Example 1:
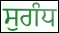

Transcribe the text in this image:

ਸੁਗੰਧ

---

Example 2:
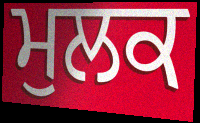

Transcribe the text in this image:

ਮੁਲਕ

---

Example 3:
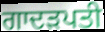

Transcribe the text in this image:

ਗਾਦੜਪਤੀ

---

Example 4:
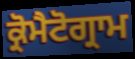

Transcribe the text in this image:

ਕ੍ਰੋਮੈਟੋਗ੍ਰਾਮ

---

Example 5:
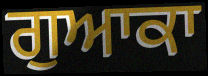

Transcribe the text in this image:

ਗੁਆਕਾ